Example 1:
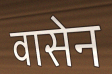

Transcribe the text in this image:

वासेन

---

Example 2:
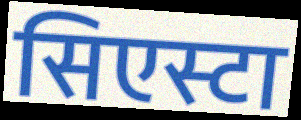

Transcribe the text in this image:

सिएस्टा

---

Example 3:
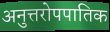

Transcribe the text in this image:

अनुत्तरोपपातिक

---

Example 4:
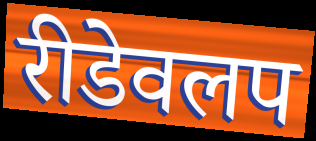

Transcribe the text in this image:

रीडेवलप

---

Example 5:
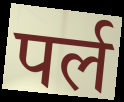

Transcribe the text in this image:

पर्ल